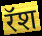
रॅश